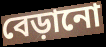
বেড়ানো